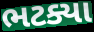
ભટક્યા